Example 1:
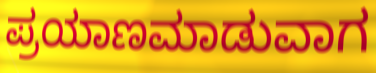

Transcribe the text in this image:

ಪ್ರಯಾಣಮಾಡುವಾಗ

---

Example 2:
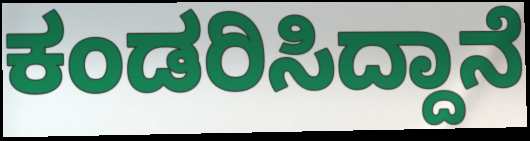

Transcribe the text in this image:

ಕಂಡರಿಸಿದ್ದಾನೆ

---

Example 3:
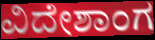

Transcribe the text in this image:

ವಿದೇಶಾಂಗ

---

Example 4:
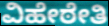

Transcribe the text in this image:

ವಿಹೇಠೇತಿ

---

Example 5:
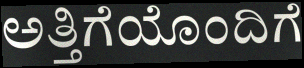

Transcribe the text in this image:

ಅತ್ತಿಗೆಯೊಂದಿಗೆ